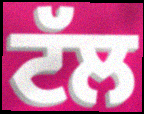
ਟੱਲ